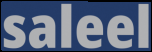
saleel